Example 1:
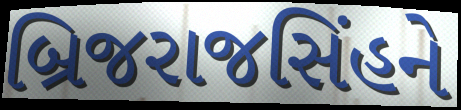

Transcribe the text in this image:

બ્રિજરાજસિંહને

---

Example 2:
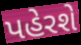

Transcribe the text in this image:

પહેરશે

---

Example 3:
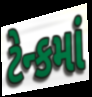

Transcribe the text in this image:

ટેન્કમાં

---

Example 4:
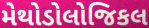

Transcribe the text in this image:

મેથોડોલોજિકલ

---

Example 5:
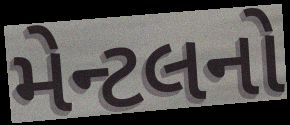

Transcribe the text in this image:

મેન્ટલનો